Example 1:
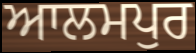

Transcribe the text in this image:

ਆਲਮਪੁਰ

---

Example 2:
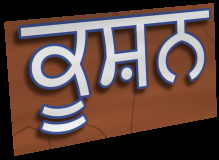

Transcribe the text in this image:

ਕੂਸ਼ਨ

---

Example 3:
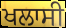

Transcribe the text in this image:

ਖਲਾਸੀ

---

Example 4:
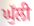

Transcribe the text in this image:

ਘੁੱਲੀ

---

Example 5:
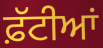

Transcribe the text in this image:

ਫ਼ੱਟੀਆਂ